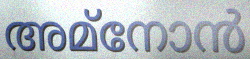
അമ്നോൻ